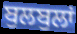
ਬੁਲਬੁਲਾਂ